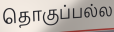
தொகுப்பல்ல